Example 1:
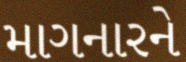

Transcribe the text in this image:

માગનારને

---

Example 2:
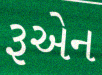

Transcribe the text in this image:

રૂએન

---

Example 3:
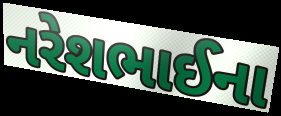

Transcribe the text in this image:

નરેશભાઈના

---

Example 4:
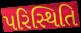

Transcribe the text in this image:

પરિસ્થિતિ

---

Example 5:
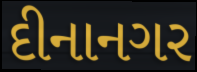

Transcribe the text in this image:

દીનાનગર